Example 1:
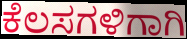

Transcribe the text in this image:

ಕೆಲಸಗಳಿಗಾಗಿ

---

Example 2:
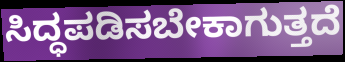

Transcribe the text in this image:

ಸಿದ್ಧಪಡಿಸಬೇಕಾಗುತ್ತದೆ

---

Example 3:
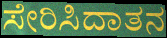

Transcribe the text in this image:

ಸೇರಿಸಿದಾತನ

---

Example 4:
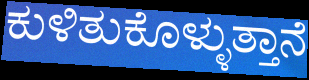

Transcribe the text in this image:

ಕುಳಿತುಕೊಳ್ಳುತ್ತಾನೆ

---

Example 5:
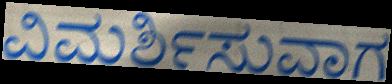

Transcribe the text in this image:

ವಿಮರ್ಶಿಸುವಾಗ